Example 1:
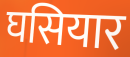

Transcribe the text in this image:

घसियार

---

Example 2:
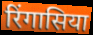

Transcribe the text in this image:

रिंगासिया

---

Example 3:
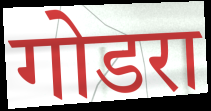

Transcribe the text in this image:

गोडरा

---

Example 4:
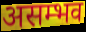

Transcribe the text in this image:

असम्भव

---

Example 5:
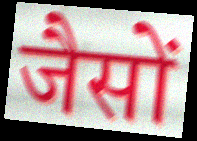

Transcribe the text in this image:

जैसों